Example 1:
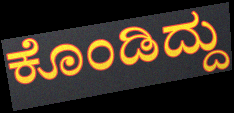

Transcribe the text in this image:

ಕೊಂಡಿದ್ದು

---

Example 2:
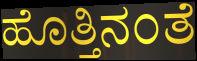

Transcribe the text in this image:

ಹೊತ್ತಿನಂತೆ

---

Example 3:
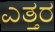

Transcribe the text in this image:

ಎತ್ತರ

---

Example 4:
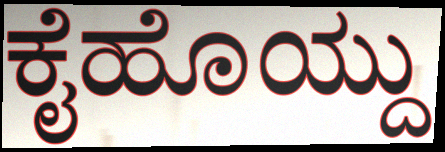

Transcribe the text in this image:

ಕೈಹೊಯ್ದು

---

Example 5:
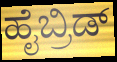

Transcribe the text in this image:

ಹೈಬ್ರಿಡ್